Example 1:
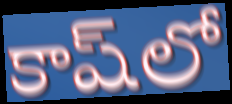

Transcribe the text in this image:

కాష్‌లో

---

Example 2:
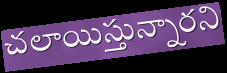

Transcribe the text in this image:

చలాయిస్తున్నారని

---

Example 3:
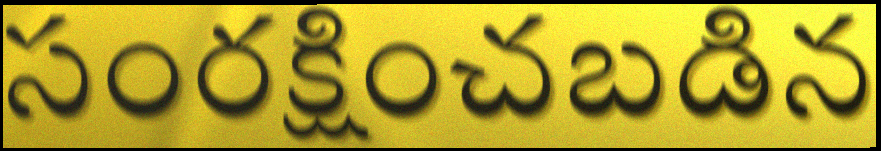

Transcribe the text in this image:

సంరక్షించబడిన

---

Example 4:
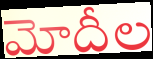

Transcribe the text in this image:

మోదీల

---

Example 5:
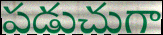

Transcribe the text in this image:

పడుచుగా